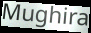
Mughira